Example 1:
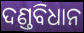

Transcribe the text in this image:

ଦଣ୍ଡବିଧାନ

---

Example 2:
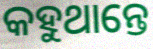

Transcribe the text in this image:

କହୁଥାନ୍ତେ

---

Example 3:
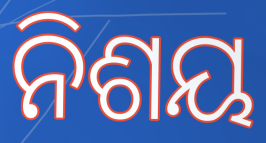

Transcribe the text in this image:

ନିଶୟ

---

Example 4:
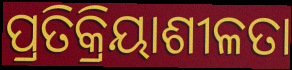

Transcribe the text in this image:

ପ୍ରତିକ୍ରିୟାଶୀଳତା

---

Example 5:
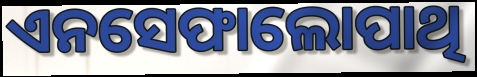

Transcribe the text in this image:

ଏନସେଫାଲୋପାଥି